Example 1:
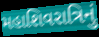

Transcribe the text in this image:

મહાશિવરાત્રિનું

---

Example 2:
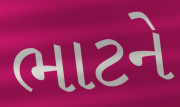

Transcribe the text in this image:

ભાટને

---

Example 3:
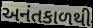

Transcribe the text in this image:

અનંતકાળથી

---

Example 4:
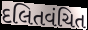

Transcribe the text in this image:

દલિતવંચિત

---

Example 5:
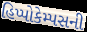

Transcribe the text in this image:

હિપ્પોકેમ્પસની